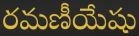
రమణీయేషు